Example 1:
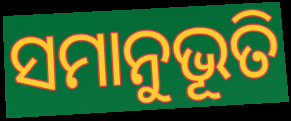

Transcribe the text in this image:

ସମାନୁଭୂତି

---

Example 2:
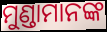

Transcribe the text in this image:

ମୁଣ୍ଡାମାନଙ୍କ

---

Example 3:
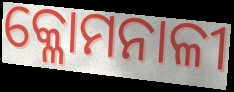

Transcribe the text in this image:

କ୍ଳୋମନାଳୀ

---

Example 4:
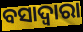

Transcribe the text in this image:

ବସାଦ୍ୱାରା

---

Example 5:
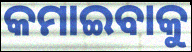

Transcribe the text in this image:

କମାଇବାକୁ